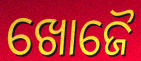
ଖୋଜୈ